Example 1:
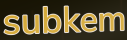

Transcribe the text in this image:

subkem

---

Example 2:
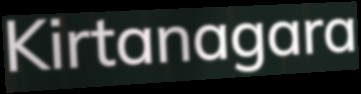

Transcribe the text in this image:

Kirtanagara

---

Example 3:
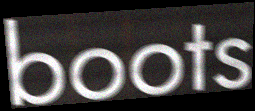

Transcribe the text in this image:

boots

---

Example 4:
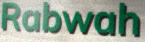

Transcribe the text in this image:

Rabwah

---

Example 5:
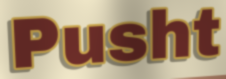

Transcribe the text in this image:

Pusht